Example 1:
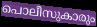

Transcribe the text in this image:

പൊലീസുകാരും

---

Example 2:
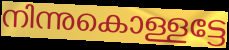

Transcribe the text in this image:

നിന്നുകൊള്ളട്ടേ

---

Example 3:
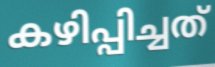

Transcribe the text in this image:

കഴിപ്പിച്ചത്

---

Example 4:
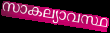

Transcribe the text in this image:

സാകല്യാവസ്ഥ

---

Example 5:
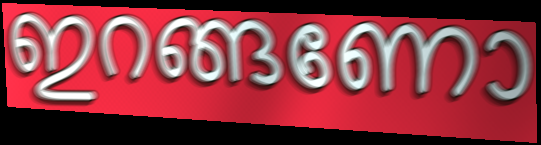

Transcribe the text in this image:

ഇറങ്ങണോ